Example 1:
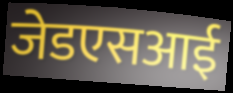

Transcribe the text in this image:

जेडएसआई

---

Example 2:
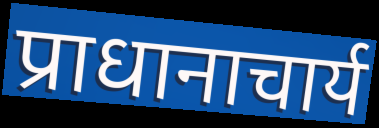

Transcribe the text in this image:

प्राधानाचार्य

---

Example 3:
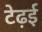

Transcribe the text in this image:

टेढ़ई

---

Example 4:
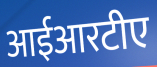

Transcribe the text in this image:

आईआरटीए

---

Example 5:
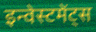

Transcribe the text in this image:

इन्वेस्टमेंट्स